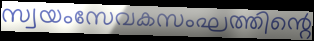
സ്വയംസേവകസംഘത്തിന്റെ